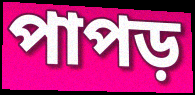
পাপড়